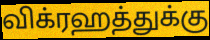
விக்ரஹத்துக்கு